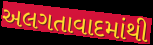
અલગતાવાદમાંથી